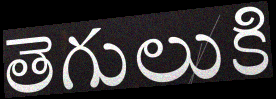
తెగులుకి